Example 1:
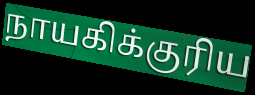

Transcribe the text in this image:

நாயகிக்குரிய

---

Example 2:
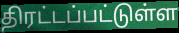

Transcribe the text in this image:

திரட்டப்பட்டுள்ள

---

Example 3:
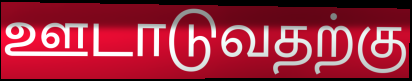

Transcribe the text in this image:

ஊடாடுவதற்கு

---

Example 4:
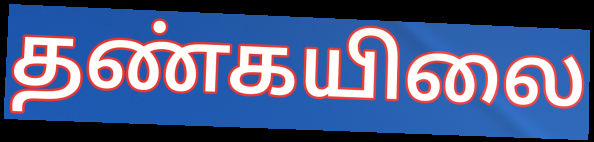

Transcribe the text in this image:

தண்கயிலை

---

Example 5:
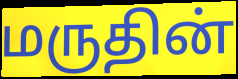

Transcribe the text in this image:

மருதின்